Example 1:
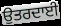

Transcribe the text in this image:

ਉਤਰਦਾਈ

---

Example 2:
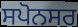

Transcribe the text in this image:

ਸਪੋਨਸਰ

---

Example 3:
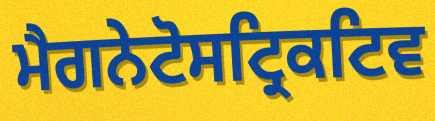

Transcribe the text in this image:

ਮੈਗਨੇਟੋਸਟ੍ਰਿਕਟਿਵ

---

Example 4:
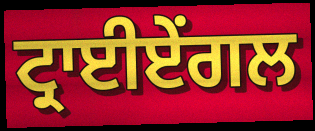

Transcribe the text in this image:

ਟ੍ਰਾਈਏਂਗਲ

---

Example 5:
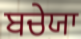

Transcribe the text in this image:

ਬਚੇਯਾ